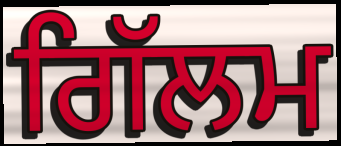
ਗਿੱਲਮ